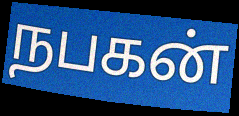
நபகன்